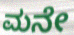
ಮನೇ